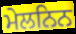
ਮੇਲਨਿਨ